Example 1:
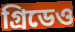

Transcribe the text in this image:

গ্রিডেও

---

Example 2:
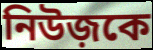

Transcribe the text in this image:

নিউজ়কে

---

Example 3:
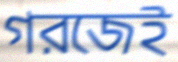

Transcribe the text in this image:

গরজেই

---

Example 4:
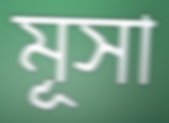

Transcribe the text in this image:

মূসা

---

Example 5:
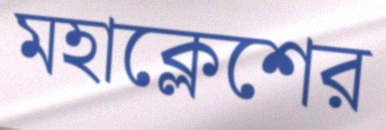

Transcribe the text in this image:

মহাক্লেশের